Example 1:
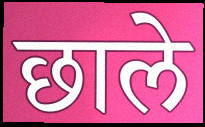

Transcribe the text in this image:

छाले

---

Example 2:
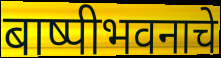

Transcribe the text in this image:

बाष्पीभवनाचे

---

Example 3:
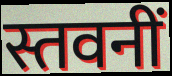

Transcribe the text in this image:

स्तवनीं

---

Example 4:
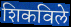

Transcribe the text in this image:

शिकविले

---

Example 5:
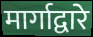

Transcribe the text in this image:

मार्गाद्वारे